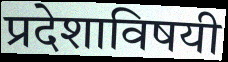
प्रदेशाविषयी